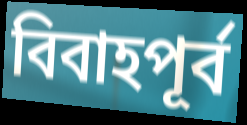
বিবাহপূর্ব